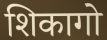
शिकागो